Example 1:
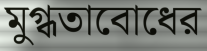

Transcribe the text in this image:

মুগ্ধতাবোধের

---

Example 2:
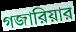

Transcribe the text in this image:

গজারিয়ার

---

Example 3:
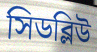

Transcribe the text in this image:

সিডব্লিউ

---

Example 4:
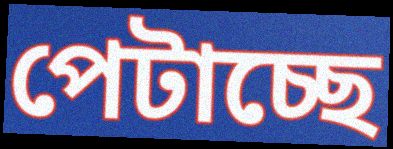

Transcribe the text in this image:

পেটাচ্ছে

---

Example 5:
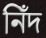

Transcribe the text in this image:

নিঁদ